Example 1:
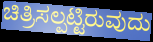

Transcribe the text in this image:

ಚಿತ್ರಿಸಲ್ಪಟ್ಟಿರುವುದು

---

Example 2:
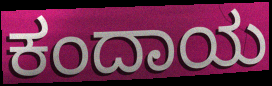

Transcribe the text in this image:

ಕಂದಾಯ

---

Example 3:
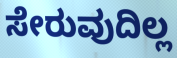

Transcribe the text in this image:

ಸೇರುವುದಿಲ್ಲ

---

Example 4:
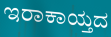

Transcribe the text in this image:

ಇರಾಕಾಯ್ತದ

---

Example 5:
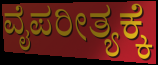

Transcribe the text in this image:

ವೈಪರೀತ್ಯಕ್ಕೆ